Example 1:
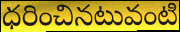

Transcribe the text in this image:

ధరించినటువంటి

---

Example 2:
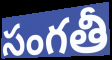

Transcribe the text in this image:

సంగతీ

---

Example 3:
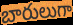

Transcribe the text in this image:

బారులుగా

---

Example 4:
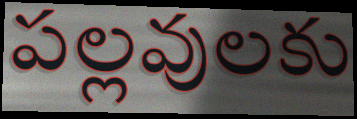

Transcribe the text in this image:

పల్లవులకు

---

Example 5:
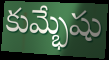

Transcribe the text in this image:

కుమ్భేషు